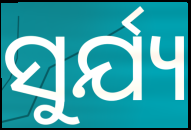
ସୁର୍ଯ୍ୟ